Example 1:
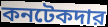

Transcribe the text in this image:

কনটেকদার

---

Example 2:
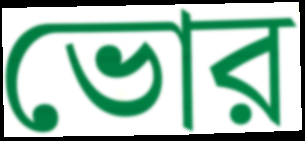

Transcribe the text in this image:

ভোর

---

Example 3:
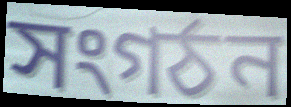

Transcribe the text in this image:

সংগঠন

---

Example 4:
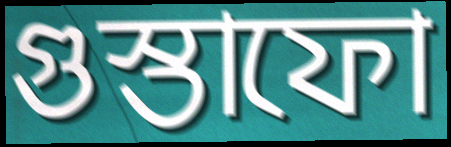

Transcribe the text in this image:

গুস্তাফো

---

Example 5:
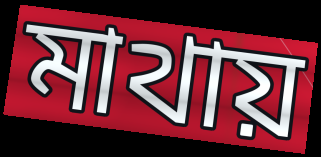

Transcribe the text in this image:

মাথায়